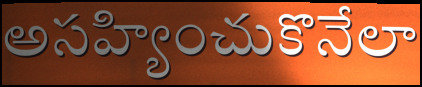
అసహ్యించుకొనేలా